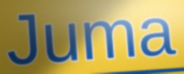
Juma